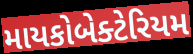
માયકોબેક્ટેરિયમ